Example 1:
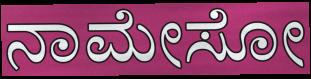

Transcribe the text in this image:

ನಾಮೇಸೋ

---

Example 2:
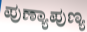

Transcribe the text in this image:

ಪುಣ್ಯಾಪುಣ್ಯ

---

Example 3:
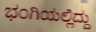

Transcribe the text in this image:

ಭಂಗಿಯಲ್ಲಿದ್ದು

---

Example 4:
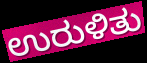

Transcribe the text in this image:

ಉರುಳಿತು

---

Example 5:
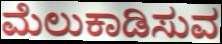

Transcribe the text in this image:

ಮೆಲುಕಾಡಿಸುವ